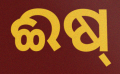
ଈଷ୍